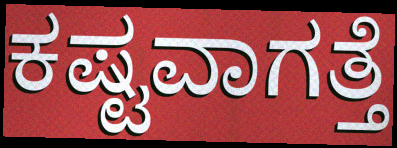
ಕಷ್ಟವಾಗತ್ತೆ